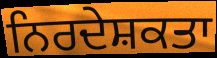
ਨਿਰਦੇਸ਼ਕਤਾ